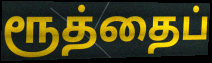
ரூத்தைப்